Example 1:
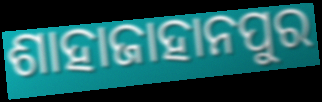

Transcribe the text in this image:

ଶାହାଜାହାନପୁର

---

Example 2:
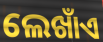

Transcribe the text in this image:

ଲେଖାଁଏ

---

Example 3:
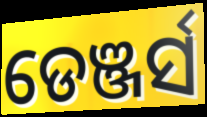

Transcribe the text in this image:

ଡେଞ୍ଜର୍ସ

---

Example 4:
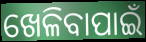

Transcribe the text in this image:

ଖେଳିବାପାଇଁ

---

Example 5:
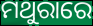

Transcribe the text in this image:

ମଥୁରାରେ